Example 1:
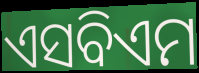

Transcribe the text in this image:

ଏସବିଏମ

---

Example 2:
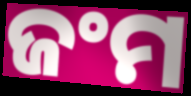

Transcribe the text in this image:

ଜଂମ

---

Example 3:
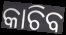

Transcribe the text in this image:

କାଚିବ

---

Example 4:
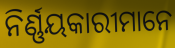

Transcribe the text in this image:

ନିର୍ଣ୍ଣୟକାରୀମାନେ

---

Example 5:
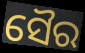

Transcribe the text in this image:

ସୈର